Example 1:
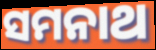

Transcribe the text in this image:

ସମନାଥ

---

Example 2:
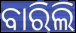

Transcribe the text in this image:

ବାରିଲି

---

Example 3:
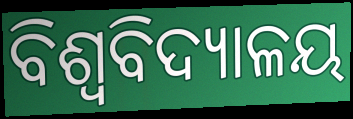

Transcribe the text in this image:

ବିଶ୍ଵବିଦ୍ୟାଳୟ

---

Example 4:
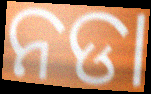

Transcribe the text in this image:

ନଡା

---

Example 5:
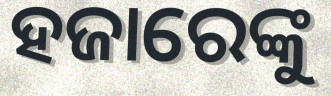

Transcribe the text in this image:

ହଜାରେଙ୍କୁ